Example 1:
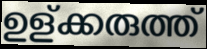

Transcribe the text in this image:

ഉള്ക്കരുത്ത്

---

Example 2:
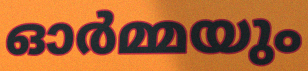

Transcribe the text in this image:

ഓർമ്മയും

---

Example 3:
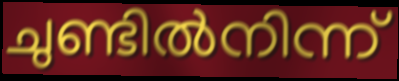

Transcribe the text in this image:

ചുണ്ടിൽനിന്ന്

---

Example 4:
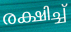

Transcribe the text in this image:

രക്ഷിച്ച്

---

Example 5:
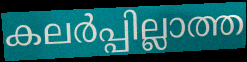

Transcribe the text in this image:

കലർപ്പില്ലാത്ത